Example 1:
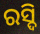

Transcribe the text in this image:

ରସ୍ଦି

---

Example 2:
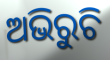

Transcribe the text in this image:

ଅଭିରୁଚି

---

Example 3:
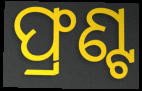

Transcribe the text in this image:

ଫ୍ରଣ୍ଟ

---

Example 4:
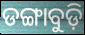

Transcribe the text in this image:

ଡଙ୍ଗାବୁଡ଼ି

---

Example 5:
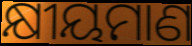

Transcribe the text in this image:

କ୍ଷୀୟମାଣ